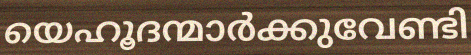
യെഹൂദന്മാർക്കുവേണ്ടി